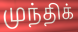
முந்திக்